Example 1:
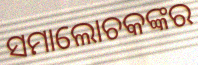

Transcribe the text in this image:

ସମାଲୋଚକଙ୍କର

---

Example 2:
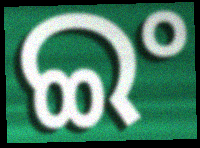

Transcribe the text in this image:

ଇଂ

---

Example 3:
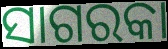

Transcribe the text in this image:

ସାଗରକା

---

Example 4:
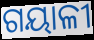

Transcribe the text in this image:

ଗୟାଳୀ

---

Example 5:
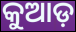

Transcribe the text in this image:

କୁଆଡ଼